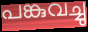
പങ്കുവച്ചു